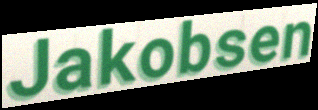
Jakobsen